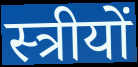
स्त्रीयों